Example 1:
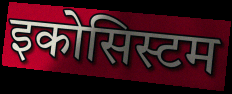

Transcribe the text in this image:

इकोसिस्टम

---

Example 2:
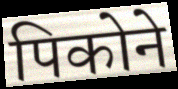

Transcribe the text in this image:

पिकोने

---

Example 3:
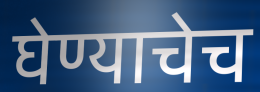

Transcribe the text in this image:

घेण्याचेच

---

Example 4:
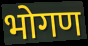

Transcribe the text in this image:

भोगण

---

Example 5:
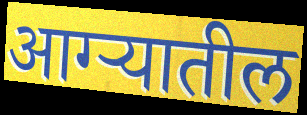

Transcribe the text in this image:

आग्ऱ्यातील